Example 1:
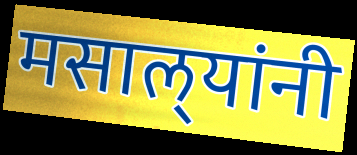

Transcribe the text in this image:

मसाल्यांनी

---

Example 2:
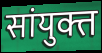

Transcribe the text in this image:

सांयुक्त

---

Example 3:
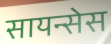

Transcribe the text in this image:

सायन्सेस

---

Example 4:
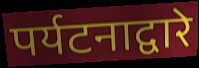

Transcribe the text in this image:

पर्यटनाद्वारे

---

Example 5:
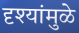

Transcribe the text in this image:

दृश्यांमुळे